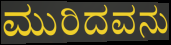
ಮುರಿದವನು